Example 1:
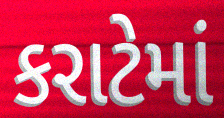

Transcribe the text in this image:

કરાટેમાં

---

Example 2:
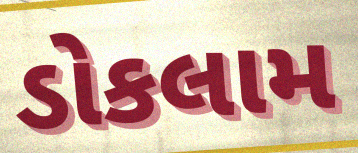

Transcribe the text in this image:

ડોકલામ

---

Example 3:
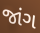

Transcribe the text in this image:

જાંગ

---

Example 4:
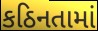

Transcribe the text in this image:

કઠિનતામાં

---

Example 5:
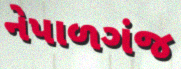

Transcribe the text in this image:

નેપાળગંજ